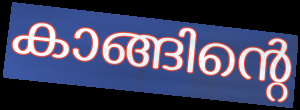
കാങ്ങിന്റെ